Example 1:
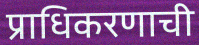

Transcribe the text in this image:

प्राधिकरणाची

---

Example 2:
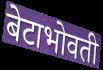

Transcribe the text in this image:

बेटाभोवती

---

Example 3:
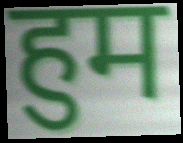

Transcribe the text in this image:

हुम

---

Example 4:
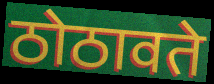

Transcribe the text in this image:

ठोठावते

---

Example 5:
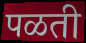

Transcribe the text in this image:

पळती